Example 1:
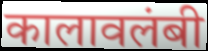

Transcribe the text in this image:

कालावलंबी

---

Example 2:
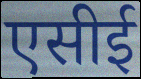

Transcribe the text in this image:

एसीई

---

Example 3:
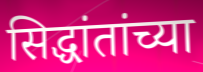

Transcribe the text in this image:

सिद्धांतांच्या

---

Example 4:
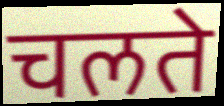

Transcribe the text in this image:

चलते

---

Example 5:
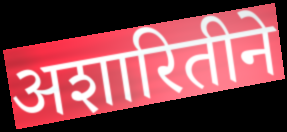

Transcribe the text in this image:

अशारितीने